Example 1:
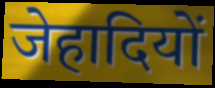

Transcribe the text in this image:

जेहादियों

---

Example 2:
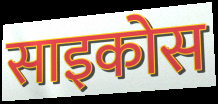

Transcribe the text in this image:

साइकोस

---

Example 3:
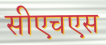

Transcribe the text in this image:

सीएचएस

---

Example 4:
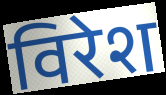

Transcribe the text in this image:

विरेश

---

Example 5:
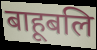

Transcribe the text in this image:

बाहूबलि